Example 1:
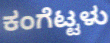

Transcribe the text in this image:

ಕಂಗೆಟ್ಟಳು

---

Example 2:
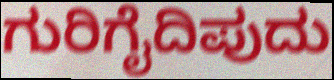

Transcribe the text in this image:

ಗುರಿಗೈದಿಪುದು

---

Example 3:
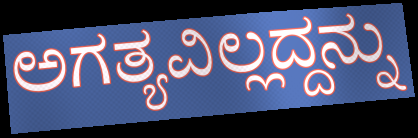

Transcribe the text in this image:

ಅಗತ್ಯವಿಲ್ಲದ್ದನ್ನು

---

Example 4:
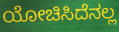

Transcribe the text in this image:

ಯೋಚಿಸಿದೆನಲ್ಲ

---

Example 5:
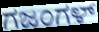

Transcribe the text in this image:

ಗಜಂಗಳ್